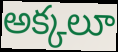
అక్కలూ